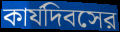
কার্যদিবসের